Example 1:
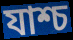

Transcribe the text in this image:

যাশ্চ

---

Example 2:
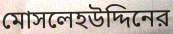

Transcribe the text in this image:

মোসলেহউদ্দিনের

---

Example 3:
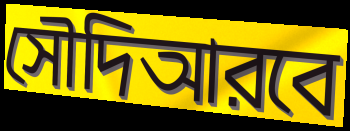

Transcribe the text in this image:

সৌদিআরবে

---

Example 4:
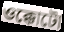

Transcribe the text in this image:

ওক্কোটো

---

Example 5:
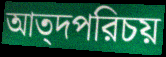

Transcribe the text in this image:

আত্দপরিচয়